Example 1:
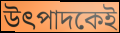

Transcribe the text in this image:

উৎপাদকেই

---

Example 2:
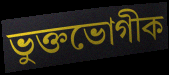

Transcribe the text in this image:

ভুক্তভোগীক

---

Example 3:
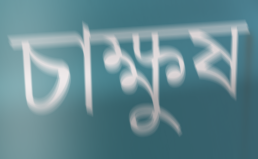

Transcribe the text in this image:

চাক্ষুষ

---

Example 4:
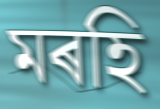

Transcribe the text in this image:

মৰহি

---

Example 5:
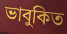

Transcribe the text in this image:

ভাবুকিত